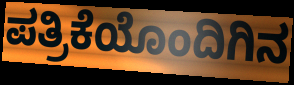
ಪತ್ರಿಕೆಯೊಂದಿಗಿನ